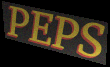
PEPS